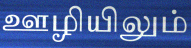
ஊழியிலும்